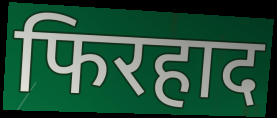
फिरहाद